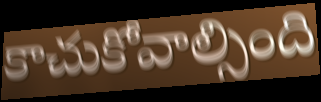
కాచుకోవాల్సింది